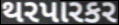
થરપારકર